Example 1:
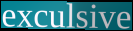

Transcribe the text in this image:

exculsive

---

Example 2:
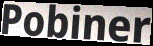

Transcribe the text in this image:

Pobiner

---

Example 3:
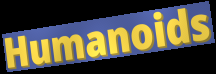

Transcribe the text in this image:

Humanoids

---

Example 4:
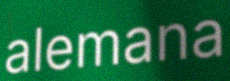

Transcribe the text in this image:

alemana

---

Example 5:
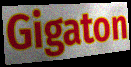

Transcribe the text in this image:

Gigaton